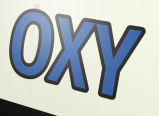
OXY